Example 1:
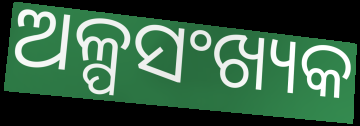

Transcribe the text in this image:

ଅଳ୍ପସଂଖ୍ୟକ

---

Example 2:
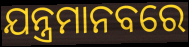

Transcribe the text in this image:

ଯନ୍ତ୍ରମାନବରେ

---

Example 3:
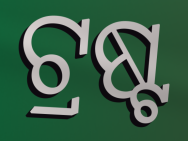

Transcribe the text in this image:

ଟ୍ରଷ୍ଟ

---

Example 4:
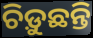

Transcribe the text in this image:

ଚିଡ଼ୁଛନ୍ତି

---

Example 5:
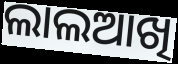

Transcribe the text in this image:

ଲାଲଆଖି